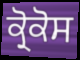
ਕ੍ਰੋਕੋਸ